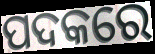
ପଦକରେ